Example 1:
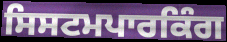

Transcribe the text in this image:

ਸਿਸਟਮਪਾਰਕਿੰਗ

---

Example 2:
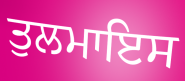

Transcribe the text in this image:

ਤੁਲਮਾਇਸ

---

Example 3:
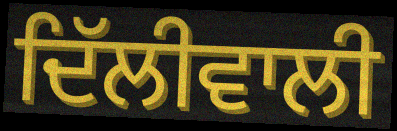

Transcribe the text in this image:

ਦਿੱਲੀਵਾਲੀ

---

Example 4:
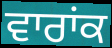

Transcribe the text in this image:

ਵਾਰਾਂਕ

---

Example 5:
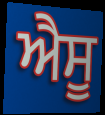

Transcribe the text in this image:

ਐਸੂ